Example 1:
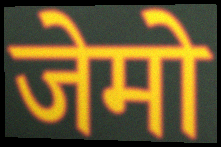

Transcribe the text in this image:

जेमो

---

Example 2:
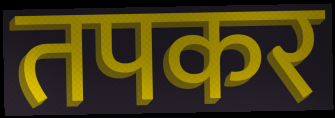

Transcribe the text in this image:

तपकर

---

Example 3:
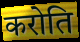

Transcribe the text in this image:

करोति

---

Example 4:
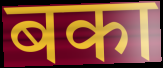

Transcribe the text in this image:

बका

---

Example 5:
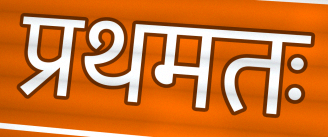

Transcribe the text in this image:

प्रथमतः